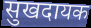
सुखदायक